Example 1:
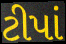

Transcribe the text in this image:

ટીપાં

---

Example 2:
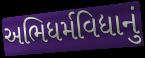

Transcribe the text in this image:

અભિધર્મવિદ્યાનું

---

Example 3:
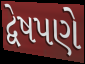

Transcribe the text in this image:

દ્વેષપણે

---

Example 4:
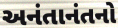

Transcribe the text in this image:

અનંતાનંતનો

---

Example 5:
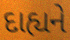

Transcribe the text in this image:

દાહ્યને